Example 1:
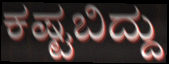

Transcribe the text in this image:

ಕಷ್ಟಬಿದ್ದು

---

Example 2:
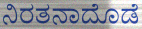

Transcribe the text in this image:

ನಿರತನಾದೊಡೆ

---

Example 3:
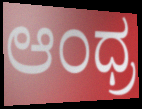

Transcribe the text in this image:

ಆಂಧ್ರ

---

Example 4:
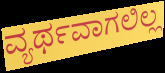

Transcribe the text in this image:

ವ್ಯರ್ಥವಾಗಲಿಲ್ಲ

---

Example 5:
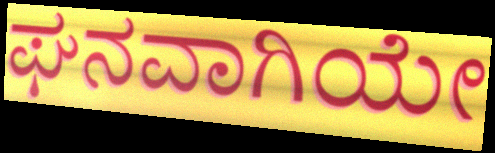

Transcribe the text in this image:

ಘನವಾಗಿಯೇ